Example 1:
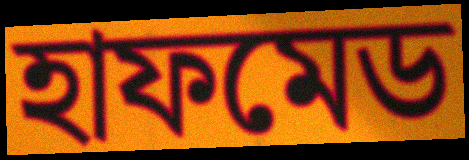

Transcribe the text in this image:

হাফমেড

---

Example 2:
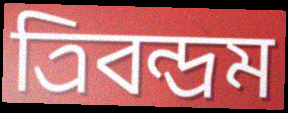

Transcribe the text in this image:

ত্রিবন্দ্রম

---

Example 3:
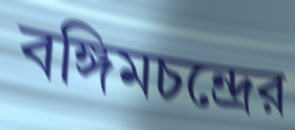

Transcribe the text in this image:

বঙ্গিমচন্দ্রের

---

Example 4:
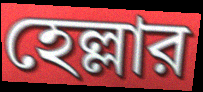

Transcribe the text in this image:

হেল্লার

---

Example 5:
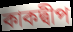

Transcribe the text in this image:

কাকদ্বীপ